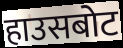
हाउसबोट